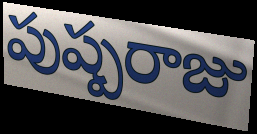
పుష్పరాజు